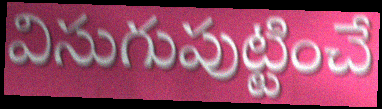
విసుగుపుట్టించే